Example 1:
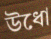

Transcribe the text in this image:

উধো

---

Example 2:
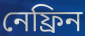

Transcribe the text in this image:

নেফ্রিন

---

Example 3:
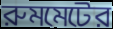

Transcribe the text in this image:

রুমমেটের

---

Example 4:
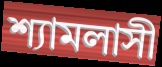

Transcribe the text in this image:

শ্যামলাসী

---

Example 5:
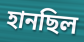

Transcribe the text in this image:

হানছিল